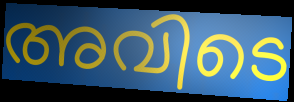
അവിടെ